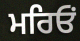
ਮਰਿਓਂ